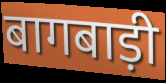
बागबाड़ी